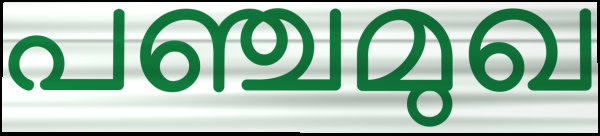
പഞ്ചമുഖ